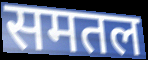
समतल